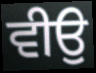
ਵੀਉ